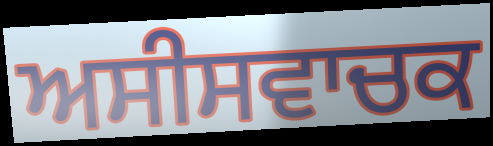
ਅਸੀਸਵਾਚਕ